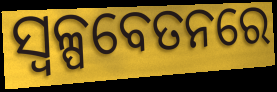
ସ୍ୱଳ୍ପବେତନରେ